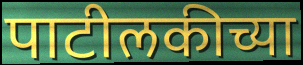
पाटीलकीच्या